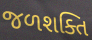
જળશક્તિ